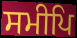
ਸਮੀਪਿ